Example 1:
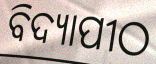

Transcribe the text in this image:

ବିଦ୍ୟାପୀଠ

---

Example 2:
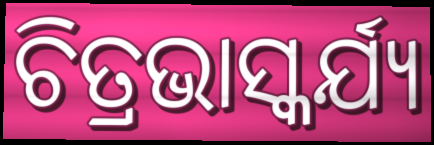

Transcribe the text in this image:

ଚିତ୍ରଭାସ୍କର୍ଯ୍ୟ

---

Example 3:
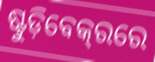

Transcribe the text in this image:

ଷ୍ଟୁଡ଼ିବେକ୍‌ରରେ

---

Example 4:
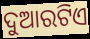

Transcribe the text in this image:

ଦୁଆରଟିଏ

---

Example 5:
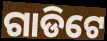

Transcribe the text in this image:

ଗାଡିଟେ